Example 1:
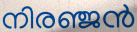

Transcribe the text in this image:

നിരഞ്ജൻ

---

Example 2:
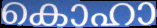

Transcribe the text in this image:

കൊഹാ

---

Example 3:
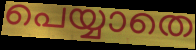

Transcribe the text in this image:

പെയ്യാതെ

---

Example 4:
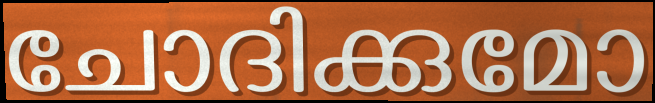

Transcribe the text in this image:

ചോദിക്കുമോ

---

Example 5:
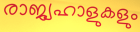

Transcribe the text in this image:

രാജ്യഹാളുകളും